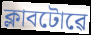
ক্লাবটোৱে